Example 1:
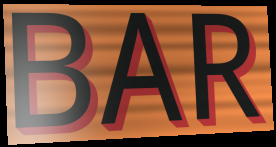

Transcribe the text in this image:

BAR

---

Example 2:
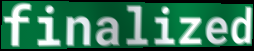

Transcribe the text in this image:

finalized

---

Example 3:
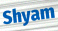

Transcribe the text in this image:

Shyam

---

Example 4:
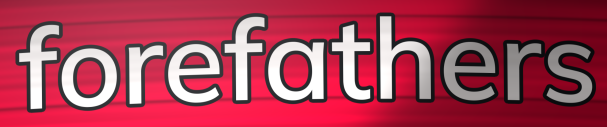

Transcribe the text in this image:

forefathers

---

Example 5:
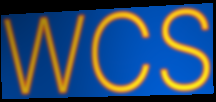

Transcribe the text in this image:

WCS